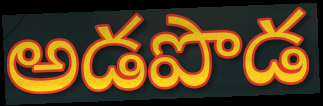
అడపొడ